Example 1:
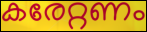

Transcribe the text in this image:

കരേറ്റണം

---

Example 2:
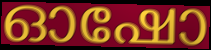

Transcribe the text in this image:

ഓഷോ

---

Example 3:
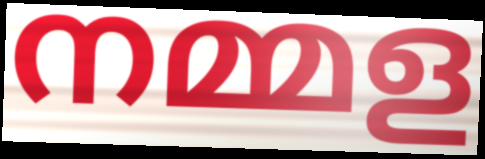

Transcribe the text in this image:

നമ്മള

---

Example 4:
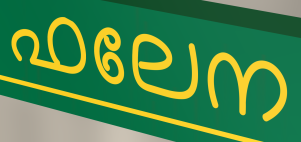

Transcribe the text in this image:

ഫലേന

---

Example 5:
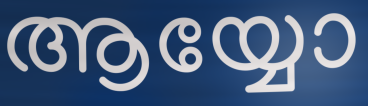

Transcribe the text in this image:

ആയ്യോ